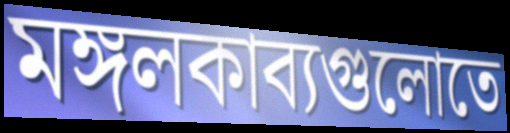
মঙ্গলকাব্যগুলোতে